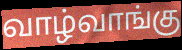
வாழ்வாங்கு